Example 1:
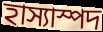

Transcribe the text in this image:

হাস্যাস্পদ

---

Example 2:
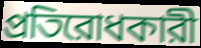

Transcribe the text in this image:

প্রতিরোধকারী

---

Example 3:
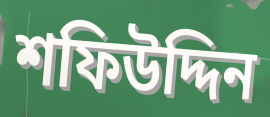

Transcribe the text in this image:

শফিউদ্দিন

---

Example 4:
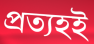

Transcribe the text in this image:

প্রত্যহই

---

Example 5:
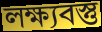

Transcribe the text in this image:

লক্ষ্যবস্তু